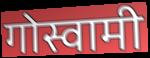
गोस्वामी